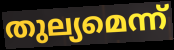
തുല്യമെന്ന്